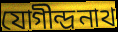
যোগীন্দ্রনাথ